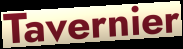
Tavernier